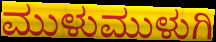
ಮುಳುಮುಳುಗಿ